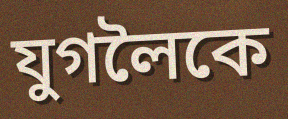
যুগলৈকে